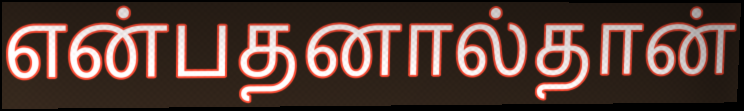
என்பதனால்தான்